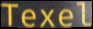
Texel